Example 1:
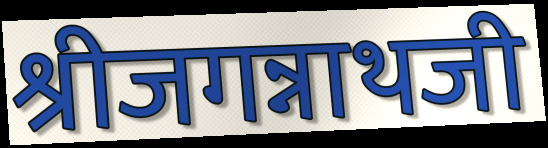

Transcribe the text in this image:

श्रीजगन्नाथजी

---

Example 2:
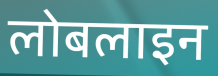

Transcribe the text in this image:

लोबलाइन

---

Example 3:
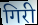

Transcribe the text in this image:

गिरी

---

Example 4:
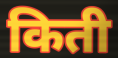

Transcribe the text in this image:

किती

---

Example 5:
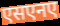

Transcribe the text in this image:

एसएनए